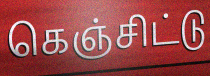
கெஞ்சிட்டு